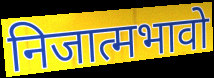
निजात्मभावो